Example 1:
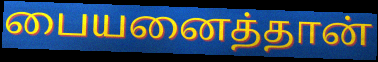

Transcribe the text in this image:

பையனைத்தான்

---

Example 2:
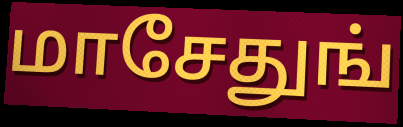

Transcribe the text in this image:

மாசேதுங்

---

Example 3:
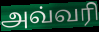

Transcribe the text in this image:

அவ்வரி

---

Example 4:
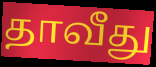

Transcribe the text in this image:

தாவீது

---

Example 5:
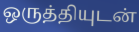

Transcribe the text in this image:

ஒருத்தியுடன்